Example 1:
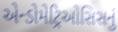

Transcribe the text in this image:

એન્ડોમેટ્રિઓસિસનું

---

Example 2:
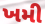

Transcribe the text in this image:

ખમી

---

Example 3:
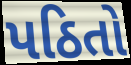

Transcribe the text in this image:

પઠિતો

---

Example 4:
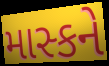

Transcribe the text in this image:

માસ્કને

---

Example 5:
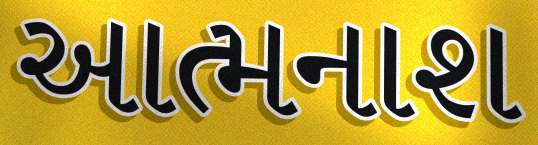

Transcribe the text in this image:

આત્મનાશ